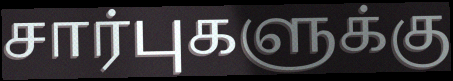
சார்புகளுக்கு